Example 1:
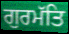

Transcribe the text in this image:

ਗੁਰਮੱਤਿ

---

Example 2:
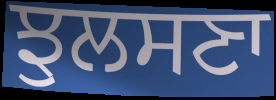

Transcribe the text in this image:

ਝੁਲਸਣਾ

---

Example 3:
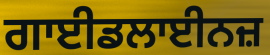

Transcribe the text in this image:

ਗਾਈਡਲਾਈਨਜ਼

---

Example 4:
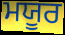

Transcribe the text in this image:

ਮਯੂਰ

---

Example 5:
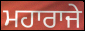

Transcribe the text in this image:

ਮਹਾਰਾਜੇ